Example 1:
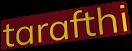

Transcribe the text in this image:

tarafthi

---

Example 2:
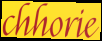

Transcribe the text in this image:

chhorie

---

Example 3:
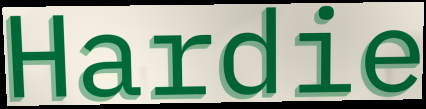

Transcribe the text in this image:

Hardie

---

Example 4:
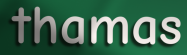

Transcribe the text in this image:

thamas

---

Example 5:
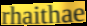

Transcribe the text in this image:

rhaithae